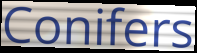
Conifers